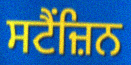
ਸਟੈਂਜ਼ਿਨ